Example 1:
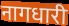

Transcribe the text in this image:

नागधारी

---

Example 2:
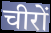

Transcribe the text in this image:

चीरों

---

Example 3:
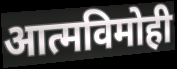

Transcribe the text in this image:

आत्मविमोही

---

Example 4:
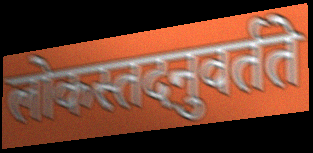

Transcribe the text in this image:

लोकस्तदनुवर्तते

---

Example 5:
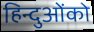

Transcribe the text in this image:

हिन्दुओंको